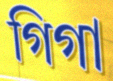
গিগা